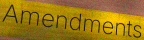
Amendments